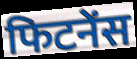
फिटनेंस